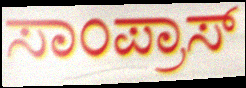
ಸಾಂಪ್ರಾಸ್